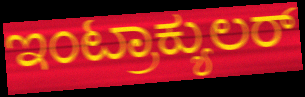
ಇಂಟ್ರಾಕ್ಯುಲರ್